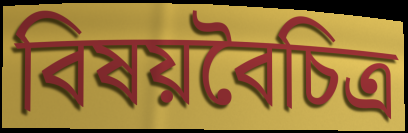
বিষয়বৈচিত্র